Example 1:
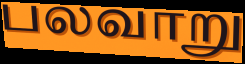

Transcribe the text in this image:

பலவாறு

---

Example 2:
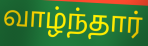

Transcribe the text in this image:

வாழ்ந்தார்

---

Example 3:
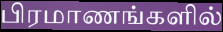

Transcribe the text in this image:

பிரமாணங்களில்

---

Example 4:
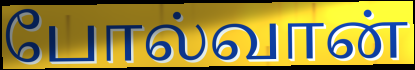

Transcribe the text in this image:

போல்வான்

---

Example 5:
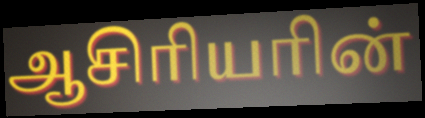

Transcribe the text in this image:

ஆசிரியரின்